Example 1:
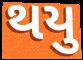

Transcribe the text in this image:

થયુ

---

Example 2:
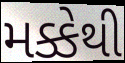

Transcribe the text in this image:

મક્કેથી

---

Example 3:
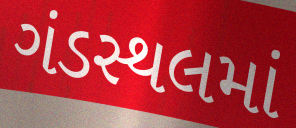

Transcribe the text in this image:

ગંડસ્થલમાં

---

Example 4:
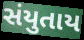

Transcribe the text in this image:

સંયુતાય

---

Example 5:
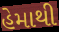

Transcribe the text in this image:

હેમાથી